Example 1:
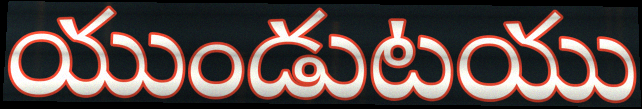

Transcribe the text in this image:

యుండుటయు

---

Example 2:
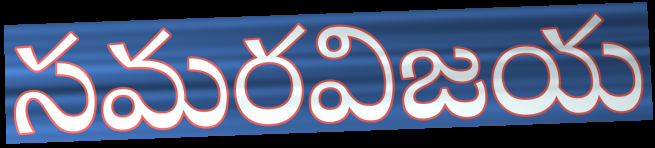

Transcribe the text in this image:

సమరవిజయ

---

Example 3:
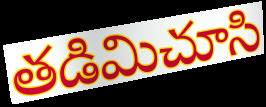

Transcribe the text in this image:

తడిమిచూసి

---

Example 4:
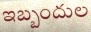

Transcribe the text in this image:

ఇబ్బందుల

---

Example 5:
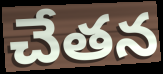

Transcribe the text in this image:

చేతన